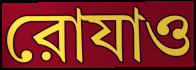
রোযাও